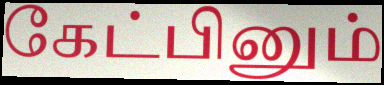
கேட்பினும்